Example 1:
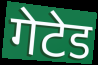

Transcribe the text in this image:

गेटेड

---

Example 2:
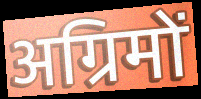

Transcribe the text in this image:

अग्रिमों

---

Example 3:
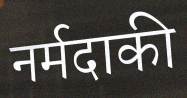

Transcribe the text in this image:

नर्मदाकी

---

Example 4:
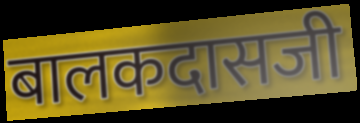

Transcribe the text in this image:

बालकदासजी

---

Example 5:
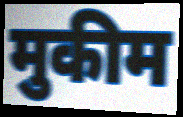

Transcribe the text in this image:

मुकीम